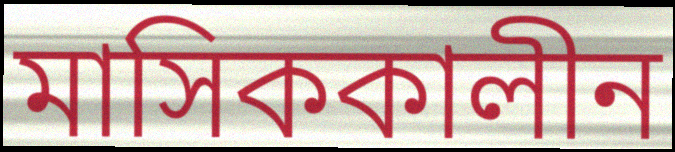
মাসিককালীন